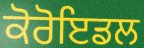
ਕੋਰੋਇਡਲ